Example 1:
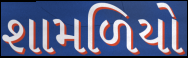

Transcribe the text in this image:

શામળિયો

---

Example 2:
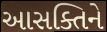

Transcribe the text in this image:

આસક્તિને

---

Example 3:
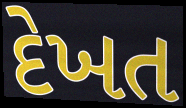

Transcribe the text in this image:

દેખત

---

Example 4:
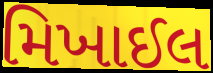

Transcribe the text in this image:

મિખાઈલ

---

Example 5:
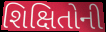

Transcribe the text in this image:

શિક્ષિતોની